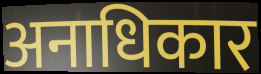
अनाधिकार